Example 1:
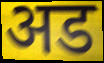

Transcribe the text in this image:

अड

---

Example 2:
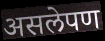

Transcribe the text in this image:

असलेपण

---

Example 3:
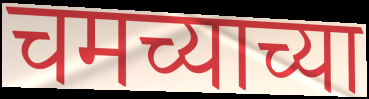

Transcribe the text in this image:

चमच्याच्या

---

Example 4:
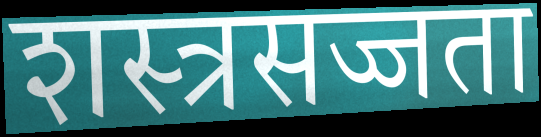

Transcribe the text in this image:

शस्त्रसज्जता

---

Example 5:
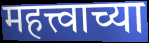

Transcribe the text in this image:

महत्त्वाच्या